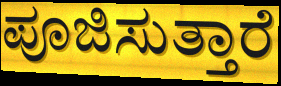
ಪೂಜಿಸುತ್ತಾರೆ